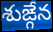
శుఙ్గేన